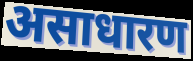
असाधारण